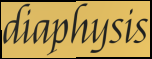
diaphysis